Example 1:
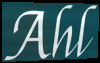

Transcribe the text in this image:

Ahl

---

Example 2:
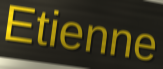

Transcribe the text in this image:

Etienne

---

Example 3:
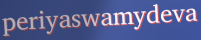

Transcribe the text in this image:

periyaswamydeva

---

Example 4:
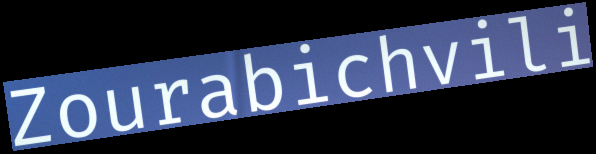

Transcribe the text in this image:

Zourabichvili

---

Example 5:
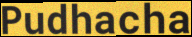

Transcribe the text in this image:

Pudhacha